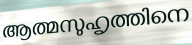
ആത്മസുഹൃത്തിനെ